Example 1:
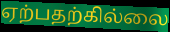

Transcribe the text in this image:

ஏற்பதற்கில்லை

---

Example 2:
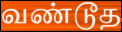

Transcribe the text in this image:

வண்டூத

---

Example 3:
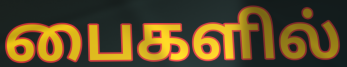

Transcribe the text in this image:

பைகளில்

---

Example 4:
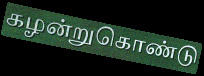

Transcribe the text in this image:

கழன்றுகொண்டு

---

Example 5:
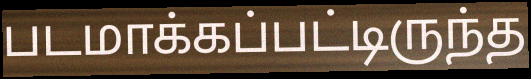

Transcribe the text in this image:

படமாக்கப்பட்டிருந்த